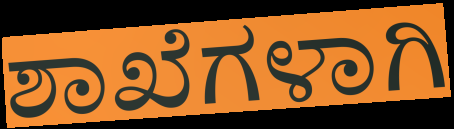
ಶಾಖೆಗಳಾಗಿ